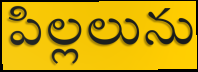
పిల్లలును